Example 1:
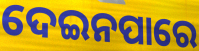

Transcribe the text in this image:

ଦେଇନପାରେ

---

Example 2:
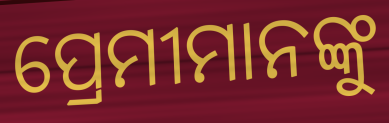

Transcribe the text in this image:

ପ୍ରେମୀମାନଙ୍କୁ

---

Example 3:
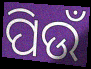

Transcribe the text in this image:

ପିଉଁ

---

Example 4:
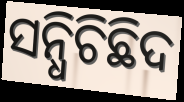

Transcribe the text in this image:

ସନ୍ଧିଚିଛିଦ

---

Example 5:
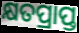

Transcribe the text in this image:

କ୍ଷତପ୍ରାପ୍ତ